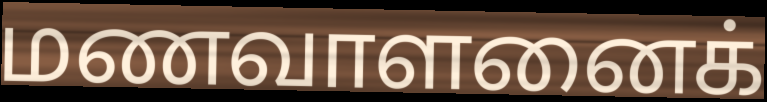
மணவாளனைக்